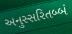
અનુસ્સરિતબ્બં